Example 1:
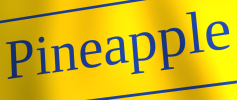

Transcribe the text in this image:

Pineapple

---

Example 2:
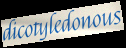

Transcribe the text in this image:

dicotyledonous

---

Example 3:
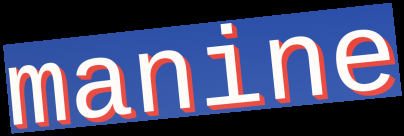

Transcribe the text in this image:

manine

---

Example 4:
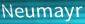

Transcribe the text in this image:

Neumayr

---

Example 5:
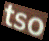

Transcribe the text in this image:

tso